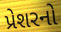
પ્રેશરનો